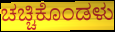
ಚಚ್ಚಿಕೊಂಡಳು